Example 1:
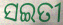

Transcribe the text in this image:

ସଇତୀ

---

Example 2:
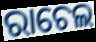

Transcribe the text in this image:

ରାଚେଲ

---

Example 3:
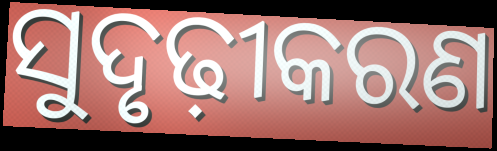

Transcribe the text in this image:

ସୁଦୃଢ଼ୀକରଣ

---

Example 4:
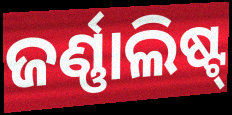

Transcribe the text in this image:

ଜର୍ଣ୍ଣାଲିଷ୍ଟ୍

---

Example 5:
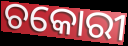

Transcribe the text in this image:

ଚକୋରୀ